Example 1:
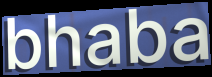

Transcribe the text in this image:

bhaba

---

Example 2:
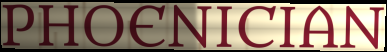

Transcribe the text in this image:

PHOENICIAN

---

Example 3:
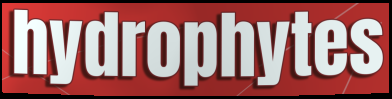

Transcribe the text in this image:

hydrophytes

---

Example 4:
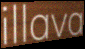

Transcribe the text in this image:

illava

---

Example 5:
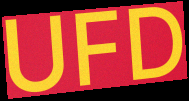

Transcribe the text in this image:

UFD